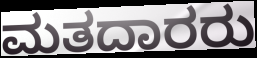
ಮತದಾರರು